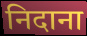
निदाना